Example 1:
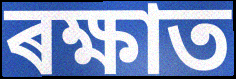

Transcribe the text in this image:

ৰক্ষাত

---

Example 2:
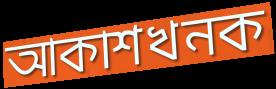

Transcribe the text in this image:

আকাশখনক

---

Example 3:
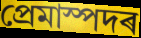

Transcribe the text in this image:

প্ৰেমাস্পদৰ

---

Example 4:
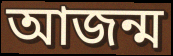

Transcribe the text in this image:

আজন্ম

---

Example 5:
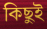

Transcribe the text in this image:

কিছুই